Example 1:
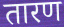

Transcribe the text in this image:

तारण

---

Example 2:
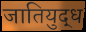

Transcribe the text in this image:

जातियुद्ध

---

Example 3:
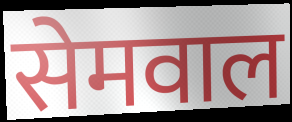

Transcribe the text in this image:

सेमवाल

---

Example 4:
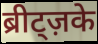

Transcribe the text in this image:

ब्रीट्ज़के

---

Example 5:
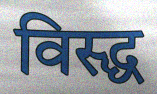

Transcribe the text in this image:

विस्द्ध